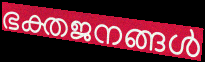
ഭക്തജനങ്ങൾ